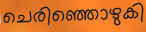
ചെരിഞ്ഞൊഴുകി